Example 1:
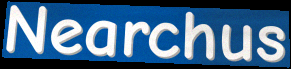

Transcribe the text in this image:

Nearchus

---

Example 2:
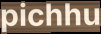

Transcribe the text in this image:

pichhu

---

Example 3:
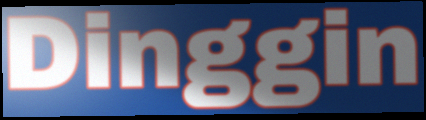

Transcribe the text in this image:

Dinggin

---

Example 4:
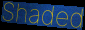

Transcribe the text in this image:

Shaded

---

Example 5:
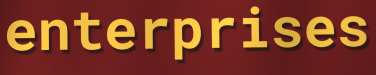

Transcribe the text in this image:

enterprises